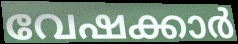
വേഷക്കാർ